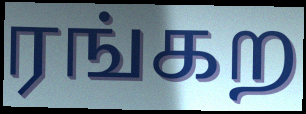
ரங்கற